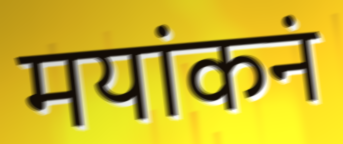
मयांकनं